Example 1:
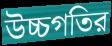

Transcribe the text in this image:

উচ্চগতির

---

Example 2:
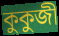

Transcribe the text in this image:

কুকুজী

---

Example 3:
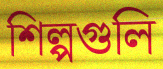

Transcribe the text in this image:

শিল্পগুলি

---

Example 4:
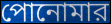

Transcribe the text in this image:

পোনোমার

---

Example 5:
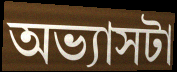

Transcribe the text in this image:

অভ্যাসটা